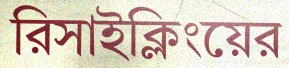
রিসাইক্লিংয়ের